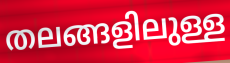
തലങ്ങളിലുള്ള